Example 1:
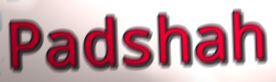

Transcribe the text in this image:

Padshah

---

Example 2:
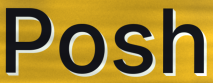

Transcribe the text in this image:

Posh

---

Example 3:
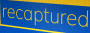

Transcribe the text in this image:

recaptured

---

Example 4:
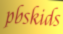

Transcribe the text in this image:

pbskids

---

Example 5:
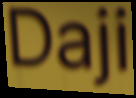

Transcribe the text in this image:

Daji